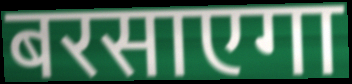
बरसाएगा